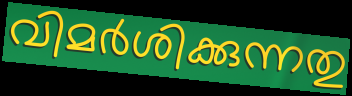
വിമർശിക്കുന്നതു